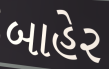
બાહેર